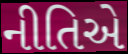
નીતિએ